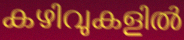
കഴിവുകളിൽ